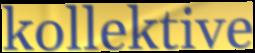
kollektive